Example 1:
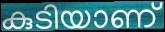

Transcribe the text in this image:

കുടിയാണ്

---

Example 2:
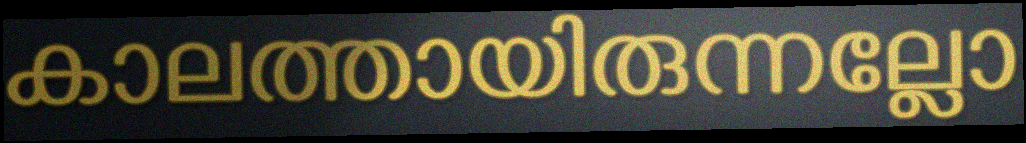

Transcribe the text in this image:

കാലത്തായിരുന്നല്ലോ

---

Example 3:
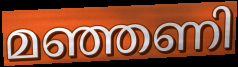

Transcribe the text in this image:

മഞ്ഞണി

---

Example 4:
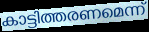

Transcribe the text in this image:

കാട്ടിത്തരണമെന്ന്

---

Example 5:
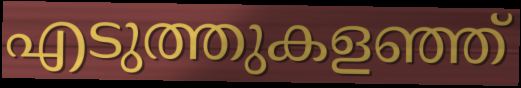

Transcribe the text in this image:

എടുത്തുകളഞ്ഞ്